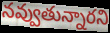
నవ్వుతున్నారని